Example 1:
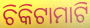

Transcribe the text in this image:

ଚିକିଟାମାଟି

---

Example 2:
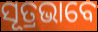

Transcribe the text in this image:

ସୂତ୍ରଭାବେ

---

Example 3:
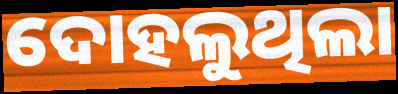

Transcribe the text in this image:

ଦୋହଲୁଥିଲା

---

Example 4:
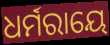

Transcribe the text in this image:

ଧର୍ମରାୟେ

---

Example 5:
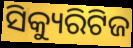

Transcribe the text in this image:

ସିକ୍ୟୁରିଟିଜ